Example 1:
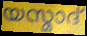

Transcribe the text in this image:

യസ്മാദ്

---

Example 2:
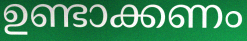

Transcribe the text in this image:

ഉണ്ടാക്കണം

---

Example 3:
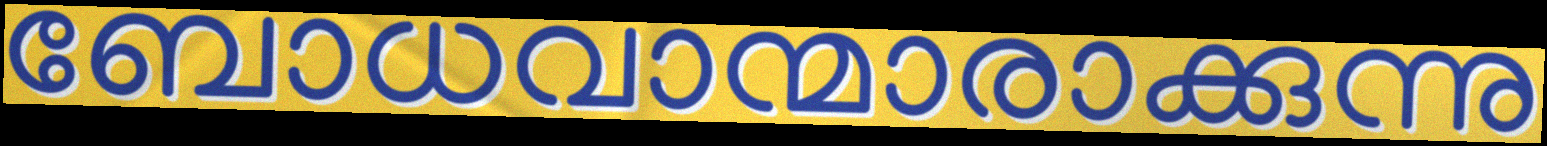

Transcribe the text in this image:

ബോധവാന്മാരാക്കുന്നു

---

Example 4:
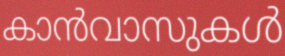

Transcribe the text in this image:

കാൻവാസുകൾ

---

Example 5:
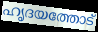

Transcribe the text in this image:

ഹൃദയത്തോട്